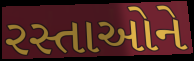
રસ્તાઓને